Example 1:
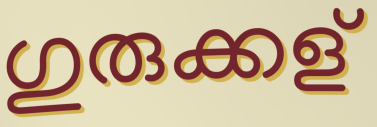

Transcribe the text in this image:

ഗുരുക്കള്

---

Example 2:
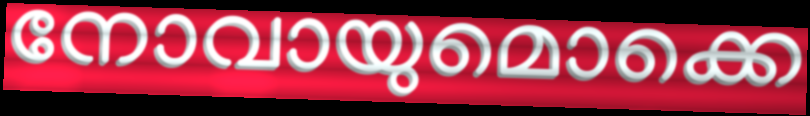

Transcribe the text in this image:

നോവായുമൊക്കെ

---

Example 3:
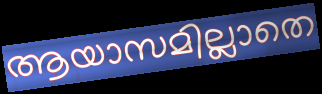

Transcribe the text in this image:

ആയാസമില്ലാതെ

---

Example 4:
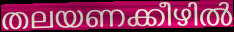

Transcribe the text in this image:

തലയണക്കീഴിൽ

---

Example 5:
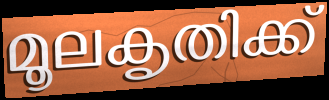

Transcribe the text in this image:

മൂലകൃതിക്ക്